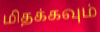
மிதக்கவும்